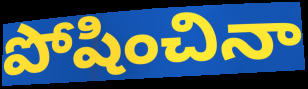
పోషించినా